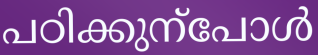
പഠിക്കുന്പോൾ